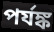
পর্যঙ্ক